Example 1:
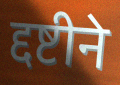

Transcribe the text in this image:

द्दष्टीने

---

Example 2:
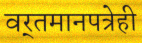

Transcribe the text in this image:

वर्तमानपत्रेही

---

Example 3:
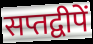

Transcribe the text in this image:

सप्तद्वीपें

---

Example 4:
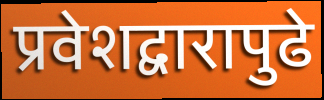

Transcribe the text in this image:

प्रवेशद्वारापुढे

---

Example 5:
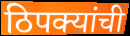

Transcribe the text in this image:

ठिपक्यांची